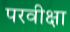
परवीक्षा